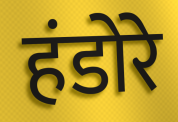
हंडोरे